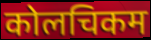
कोलचिकम